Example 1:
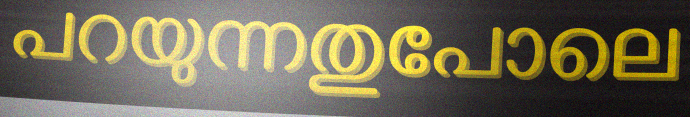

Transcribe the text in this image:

പറയുന്നതുപോലെ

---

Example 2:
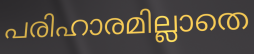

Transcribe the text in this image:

പരിഹാരമില്ലാതെ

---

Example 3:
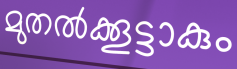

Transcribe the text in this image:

മുതൽക്കൂട്ടാകും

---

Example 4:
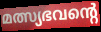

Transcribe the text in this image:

മത്സ്യഭവന്റെ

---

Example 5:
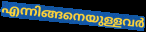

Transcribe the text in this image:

എന്നിങ്ങനെയുള്ളവർ